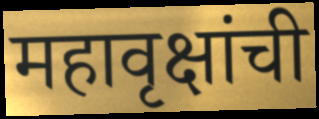
महावृक्षांची